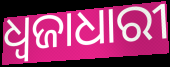
ଧ୍ବଜାଧାରୀ